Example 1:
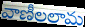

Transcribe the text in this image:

వాణీలలామ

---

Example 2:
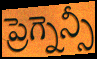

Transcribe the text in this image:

ప్రెగ్నెన్సీ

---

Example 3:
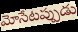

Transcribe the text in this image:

మోసేటప్పుడు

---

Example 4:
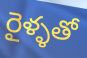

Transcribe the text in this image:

రైళ్ళతో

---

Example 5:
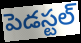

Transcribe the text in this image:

పెడస్టల్